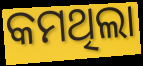
କମଥିଲା